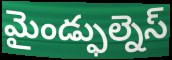
మైండ్ఫుల్నెస్